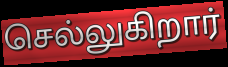
செல்லுகிறார்